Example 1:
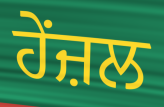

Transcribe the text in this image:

ਹੇਂਜ਼ਲ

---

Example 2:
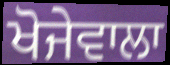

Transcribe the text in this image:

ਖੋਜੇਵਾਲਾ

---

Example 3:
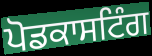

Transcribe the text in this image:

ਪੋਡਕਾਸਟਿੰਗ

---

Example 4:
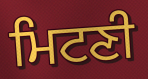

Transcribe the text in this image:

ਮਿਟਣੀ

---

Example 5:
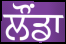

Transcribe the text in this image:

ਲੌਂਡਾ